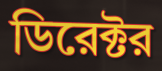
ডিরেক্টর